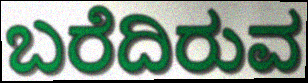
ಬರೆದಿರುವ